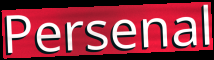
Persenal